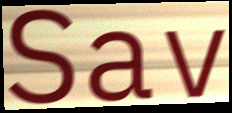
Sav